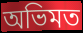
অভিমত